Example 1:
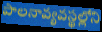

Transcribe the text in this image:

పాలనావ్యవస్థల్లోని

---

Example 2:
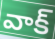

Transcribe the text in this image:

వాక్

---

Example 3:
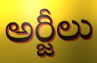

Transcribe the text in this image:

అర్జీలు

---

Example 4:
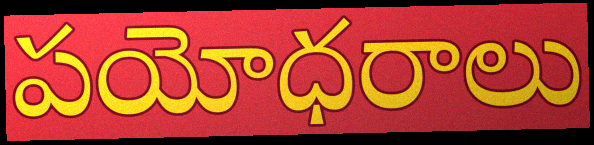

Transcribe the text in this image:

పయోధరాలు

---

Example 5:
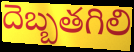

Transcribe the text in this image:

దెబ్బతగిలి